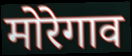
मोरेगाव